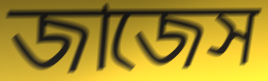
জাজেস